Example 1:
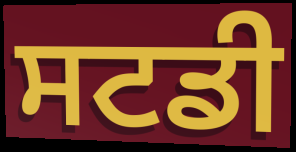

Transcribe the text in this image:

ਸਟਡੀ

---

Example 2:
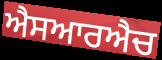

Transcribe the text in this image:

ਐਸਆਰਐਚ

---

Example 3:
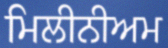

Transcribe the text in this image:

ਮਿਲੀਨੀਅਮ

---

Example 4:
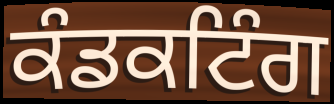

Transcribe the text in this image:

ਕੰਡਕਟਿੰਗ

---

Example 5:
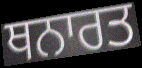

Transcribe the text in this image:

ਥਨਾਰਤ